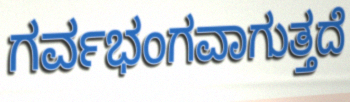
ಗರ್ವಭಂಗವಾಗುತ್ತದೆ